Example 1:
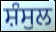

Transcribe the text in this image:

ਸ਼ੰਸੁਲ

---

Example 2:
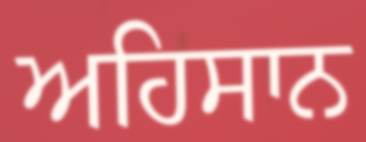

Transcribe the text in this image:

ਅਹਿਸਾਨ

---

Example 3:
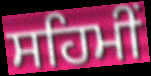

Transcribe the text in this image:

ਸਹਿਮੀਂ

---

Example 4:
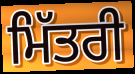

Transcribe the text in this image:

ਮਿੱਤਰੀ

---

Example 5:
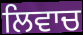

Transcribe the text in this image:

ਲਿਵਾਚ